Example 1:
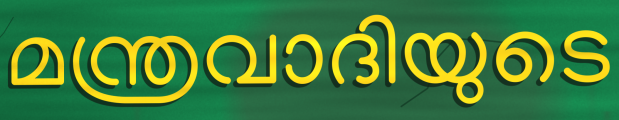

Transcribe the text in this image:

മന്ത്രവാദിയുടെ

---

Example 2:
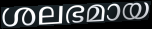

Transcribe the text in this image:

ശലഭമായ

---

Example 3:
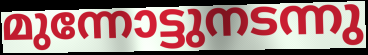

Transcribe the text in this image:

മുന്നോട്ടുനടന്നു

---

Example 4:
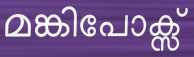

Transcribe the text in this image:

മങ്കിപോക്സ്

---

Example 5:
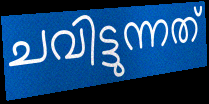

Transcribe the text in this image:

ചവിട്ടുന്നത്